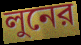
লুনের